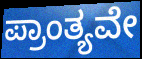
ಪ್ರಾಂತ್ಯವೇ